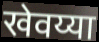
खेवय्या